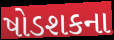
ષોડશકના